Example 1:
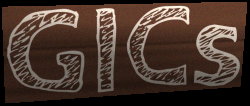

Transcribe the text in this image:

GICs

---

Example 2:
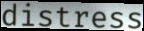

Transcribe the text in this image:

distress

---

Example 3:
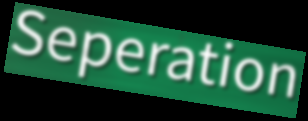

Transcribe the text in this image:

Seperation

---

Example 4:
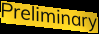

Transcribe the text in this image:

Preliminary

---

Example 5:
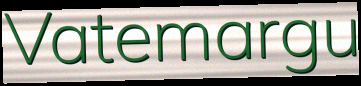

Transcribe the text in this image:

Vatemargu